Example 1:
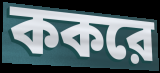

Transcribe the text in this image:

ককরে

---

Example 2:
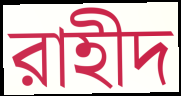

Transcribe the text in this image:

রাহীদ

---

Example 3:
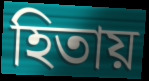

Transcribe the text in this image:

হিতায়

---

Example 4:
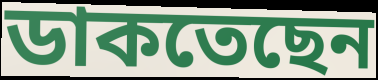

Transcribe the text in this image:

ডাকতেছেন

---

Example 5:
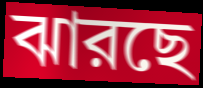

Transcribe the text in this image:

ঝারছে